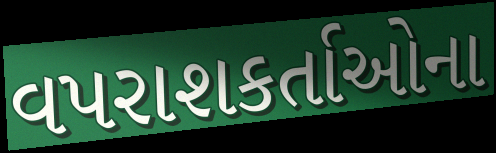
વપરાશકર્તાઓના